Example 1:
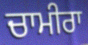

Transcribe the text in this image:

ਚਾਮੀਰਾ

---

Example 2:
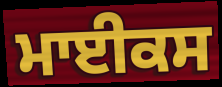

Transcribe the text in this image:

ਮਾਈਕਸ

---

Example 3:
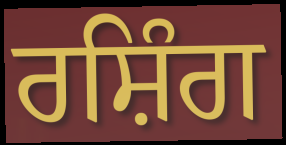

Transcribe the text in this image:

ਰਸ਼ਿੰਗ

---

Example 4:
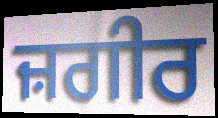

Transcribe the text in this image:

ਜ਼ਗੀਰ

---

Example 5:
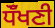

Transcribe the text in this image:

ਧੌਁਖਣੀ